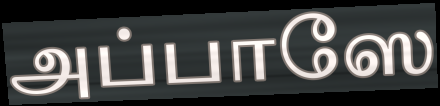
அப்பாஸே